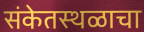
संकेतस्थळाचा